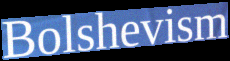
Bolshevism